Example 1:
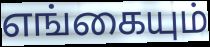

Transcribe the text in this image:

எங்கையும்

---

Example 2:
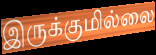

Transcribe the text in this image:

இருக்குமில்லை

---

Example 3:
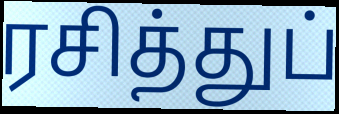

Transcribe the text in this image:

ரசித்துப்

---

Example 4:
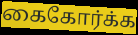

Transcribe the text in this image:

கைகோர்க்க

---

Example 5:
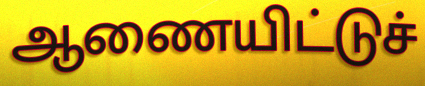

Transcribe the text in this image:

ஆணையிட்டுச்